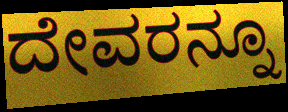
ದೇವರನ್ನೂ